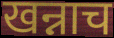
खन्नाच